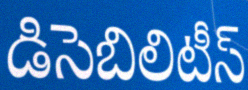
డిసెబిలిటీస్